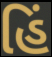
હિં